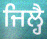
ਜਿਲ੍ਹੈ